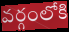
వర్గంలోకి